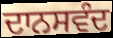
ਦਾਨਸਵੰਦ